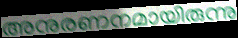
അനുരണനമായിരുന്നു